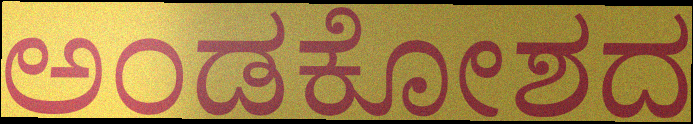
ಅಂಡಕೋಶದ